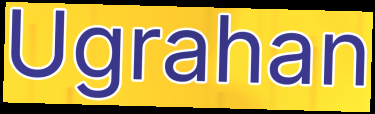
Ugrahan